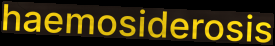
haemosiderosis